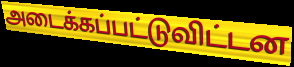
அடைக்கப்பட்டுவிட்டன